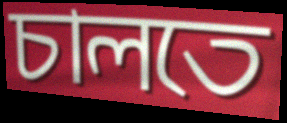
চালতে